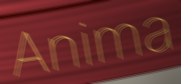
Anima